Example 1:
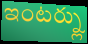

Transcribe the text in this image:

ఇంటర్న్లు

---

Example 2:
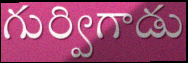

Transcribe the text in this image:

గుర్విగాడు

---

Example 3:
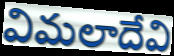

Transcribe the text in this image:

విమలాదేవి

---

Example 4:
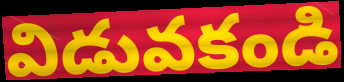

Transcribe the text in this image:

విడువకండి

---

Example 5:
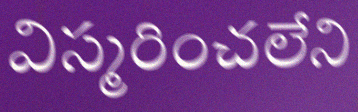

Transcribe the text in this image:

విస్మరించలేని